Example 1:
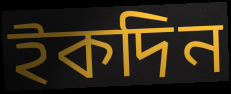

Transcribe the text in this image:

ইকদিন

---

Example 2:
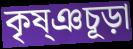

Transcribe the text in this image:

কৃষ্ঞচূড়া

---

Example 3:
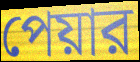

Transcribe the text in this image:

পেয়ার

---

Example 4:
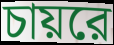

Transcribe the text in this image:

চায়রে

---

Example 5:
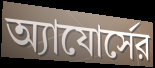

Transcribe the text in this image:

অ্যাযোর্সের